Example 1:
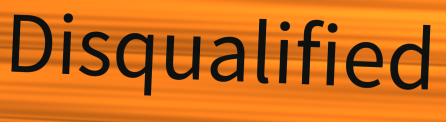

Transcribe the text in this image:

Disqualified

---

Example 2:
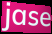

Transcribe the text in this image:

jase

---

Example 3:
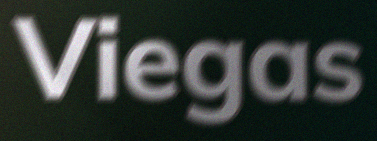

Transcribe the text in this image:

Viegas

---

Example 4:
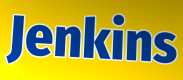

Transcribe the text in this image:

Jenkins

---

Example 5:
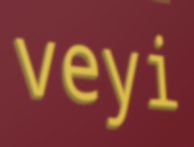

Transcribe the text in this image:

veyi